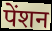
पेंशन